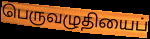
பெருவழுதியைப்